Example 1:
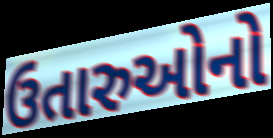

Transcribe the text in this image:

ઉતારુઓનો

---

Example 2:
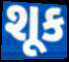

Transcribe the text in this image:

શૂક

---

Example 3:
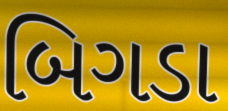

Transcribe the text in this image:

બિગડા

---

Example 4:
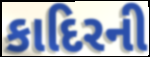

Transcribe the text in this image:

કાદિરની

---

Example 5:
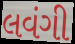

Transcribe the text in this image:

લવંગી